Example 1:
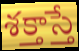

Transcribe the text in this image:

శక్తాస్తే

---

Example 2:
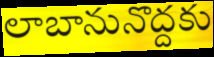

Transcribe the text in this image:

లాబానునొద్దకు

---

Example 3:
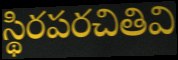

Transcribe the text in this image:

స్థిరపరచితివి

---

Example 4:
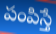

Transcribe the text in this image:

పంపిస్తే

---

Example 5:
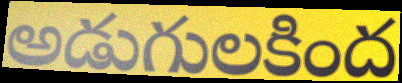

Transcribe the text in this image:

అడుగులకింద